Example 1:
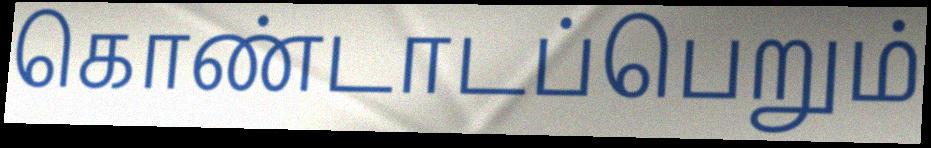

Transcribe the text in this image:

கொண்டாடப்பெறும்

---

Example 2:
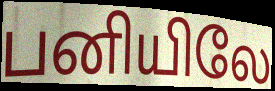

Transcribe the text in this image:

பனியிலே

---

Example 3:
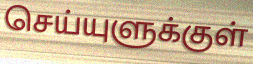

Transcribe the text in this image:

செய்யுளுக்குள்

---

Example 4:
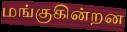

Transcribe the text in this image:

மங்குகின்றன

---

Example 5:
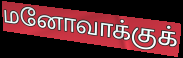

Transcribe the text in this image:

மனோவாக்குக்